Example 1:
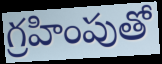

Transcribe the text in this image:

గ్రహింపుతో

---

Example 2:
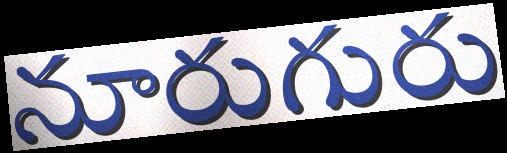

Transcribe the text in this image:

నూరుగురు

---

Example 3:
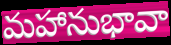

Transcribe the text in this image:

మహానుభావా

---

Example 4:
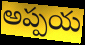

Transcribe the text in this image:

అప్పయ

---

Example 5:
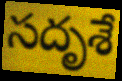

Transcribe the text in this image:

సదృశే